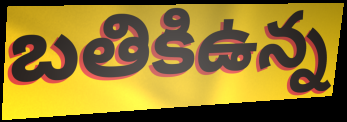
బతికిఉన్న